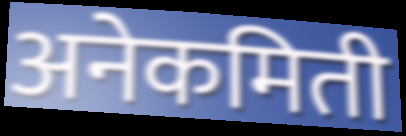
अनेकमिती